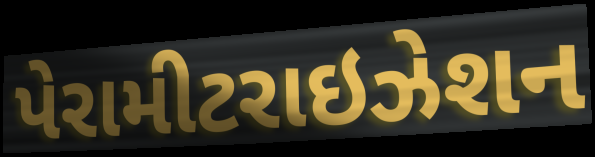
પેરામીટરાઇઝેશન